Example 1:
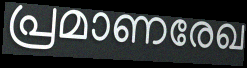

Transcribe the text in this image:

പ്രമാണരേഖ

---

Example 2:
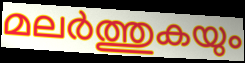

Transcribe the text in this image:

മലർത്തുകയും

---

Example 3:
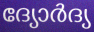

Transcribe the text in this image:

ദ്യോർദ്യ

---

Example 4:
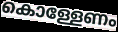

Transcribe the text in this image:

കൊള്ളേണം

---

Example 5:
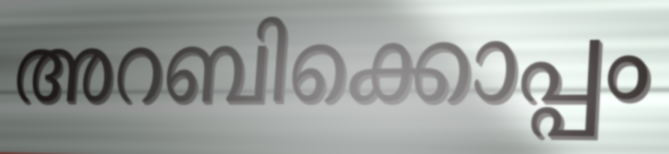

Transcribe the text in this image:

അറബിക്കൊപ്പം